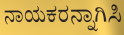
ನಾಯಕರನ್ನಾಗಿಸಿ